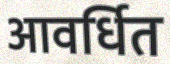
आवर्धित